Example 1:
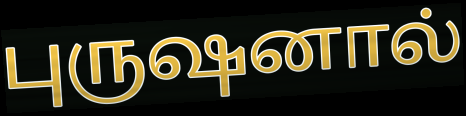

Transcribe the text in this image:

புருஷனால்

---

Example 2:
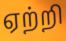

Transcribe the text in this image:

ஏற்றி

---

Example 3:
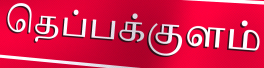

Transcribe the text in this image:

தெப்பக்குளம்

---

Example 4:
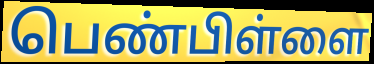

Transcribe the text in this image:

பெண்பிள்ளை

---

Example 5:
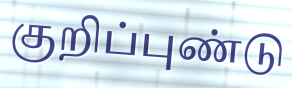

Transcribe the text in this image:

குறிப்புண்டு